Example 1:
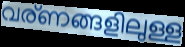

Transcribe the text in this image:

വര്ണങ്ങളിലുള്ള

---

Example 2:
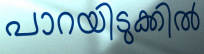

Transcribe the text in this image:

പാറയിടുക്കിൽ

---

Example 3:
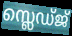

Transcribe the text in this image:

സ്ലെഡ്ജ്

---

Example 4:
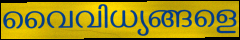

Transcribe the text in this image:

വൈവിധ്യങ്ങളെ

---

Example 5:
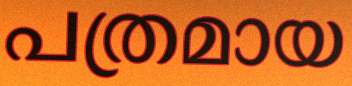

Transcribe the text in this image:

പത്രമായ